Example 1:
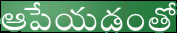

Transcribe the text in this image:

ఆపేయడంతో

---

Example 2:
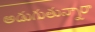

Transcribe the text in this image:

అడుగుతున్నారా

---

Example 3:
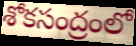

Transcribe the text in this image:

శోకసంద్రంలో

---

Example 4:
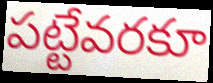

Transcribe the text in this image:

పట్టేవరకూ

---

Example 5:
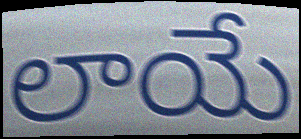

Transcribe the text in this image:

లాయే